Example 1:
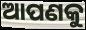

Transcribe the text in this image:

ଆପଣକୁ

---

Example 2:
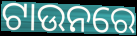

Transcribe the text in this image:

ଟାଉନରେ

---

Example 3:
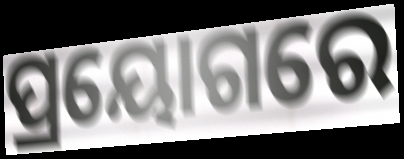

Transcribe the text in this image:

ପ୍ରୟୋଗରେ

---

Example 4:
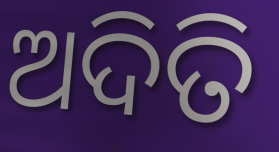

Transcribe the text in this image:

ଅଦିତି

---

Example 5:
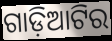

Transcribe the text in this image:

ଗାଡ଼ିଆଟିର